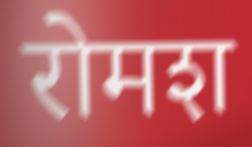
रोमश